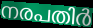
നരപതിർ